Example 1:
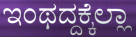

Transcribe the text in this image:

ಇಂಥದ್ದಕ್ಕೆಲ್ಲಾ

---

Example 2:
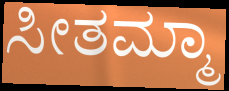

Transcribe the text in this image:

ಸೀತಮ್ಮಾ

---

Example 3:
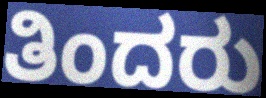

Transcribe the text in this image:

ತಿಂದರು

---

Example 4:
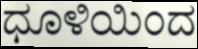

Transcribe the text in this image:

ಧೂಳಿಯಿಂದ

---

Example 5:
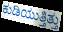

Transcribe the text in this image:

ಕುಡಿಯುತ್ತಿತ್ತು